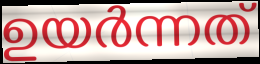
ഉയർന്നത്